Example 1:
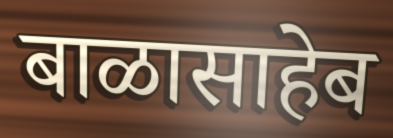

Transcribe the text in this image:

बाळासाहेब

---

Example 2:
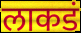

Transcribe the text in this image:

लाकडं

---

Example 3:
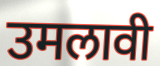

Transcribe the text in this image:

उमलावी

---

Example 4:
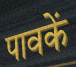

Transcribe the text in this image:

पावकें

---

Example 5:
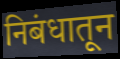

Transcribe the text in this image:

निबंधातून